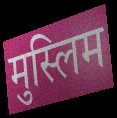
मुस्‍लिम